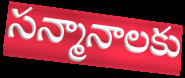
సన్మానాలకు